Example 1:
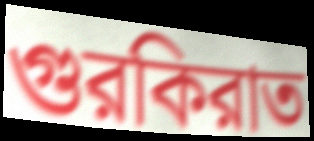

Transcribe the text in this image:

গুরকিরাত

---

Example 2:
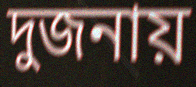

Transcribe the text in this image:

দুজনায়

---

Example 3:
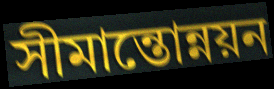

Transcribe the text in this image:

সীমান্তোন্নয়ন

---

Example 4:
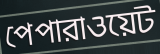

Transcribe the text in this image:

পেপারাওয়েট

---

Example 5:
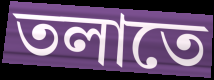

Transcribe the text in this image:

তলাতে